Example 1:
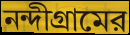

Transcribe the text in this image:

নন্দীগ্রামের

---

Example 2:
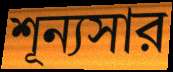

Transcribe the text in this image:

শূন্যসার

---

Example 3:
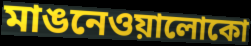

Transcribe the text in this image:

মাঙনেওয়ালোকো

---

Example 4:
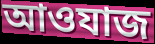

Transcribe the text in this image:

আওযাজ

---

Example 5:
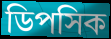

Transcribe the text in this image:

ডিপসিক